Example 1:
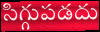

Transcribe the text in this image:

సిగ్గుపడదు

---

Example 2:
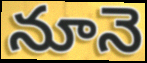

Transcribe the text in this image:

నూనె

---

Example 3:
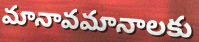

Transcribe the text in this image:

మానావమానాలకు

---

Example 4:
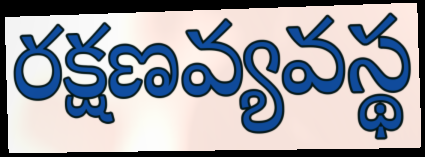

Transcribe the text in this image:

రక్షణవ్యవస్థ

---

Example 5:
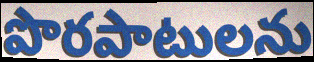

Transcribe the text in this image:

పొరపాటులను